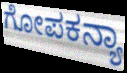
ಗೋಪಕನ್ಯಾ